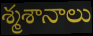
శ్మశానాలు